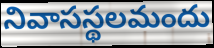
నివాసస్థలమందు